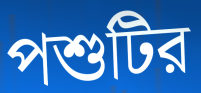
পশুটির